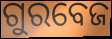
ଗୁରବେଜ